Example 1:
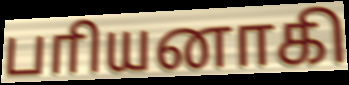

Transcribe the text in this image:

பரியனாகி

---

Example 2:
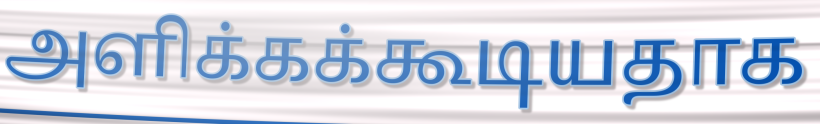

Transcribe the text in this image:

அளிக்கக்கூடியதாக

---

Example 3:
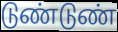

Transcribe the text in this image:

டுண்டுண்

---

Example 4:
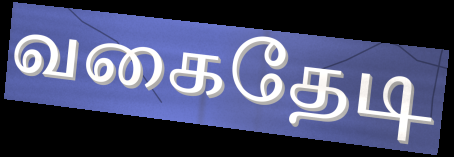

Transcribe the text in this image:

வகைதேடி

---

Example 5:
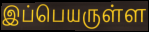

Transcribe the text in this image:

இப்பெயருள்ள